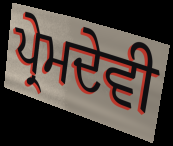
ਪ੍ਰੇਮਦੇਵੀ